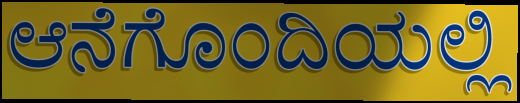
ಆನೆಗೊಂದಿಯಲ್ಲಿ